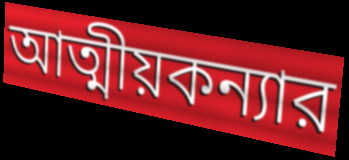
আত্মীয়কন্যার